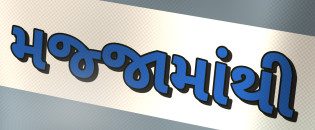
મજ્જામાંથી